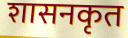
शासनकृत